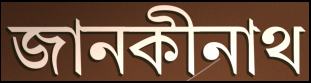
জানকীনাথ